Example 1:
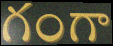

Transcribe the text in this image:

గంగా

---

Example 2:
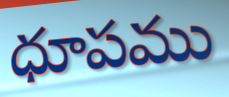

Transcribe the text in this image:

ధూపము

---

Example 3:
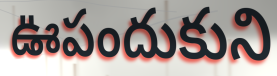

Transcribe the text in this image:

ఊపందుకుని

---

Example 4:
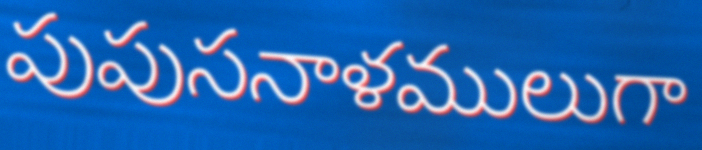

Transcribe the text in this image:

పుపుసనాళములుగా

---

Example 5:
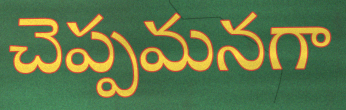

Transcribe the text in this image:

చెప్పమనగా